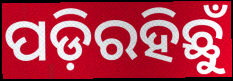
ପଡ଼ିରହିଛୁଁ